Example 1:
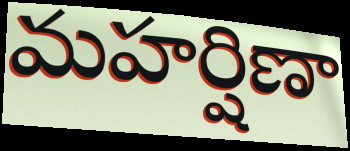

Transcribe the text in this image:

మహర్షిణా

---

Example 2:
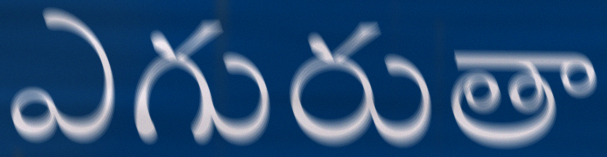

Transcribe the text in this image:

ఎగురుతా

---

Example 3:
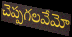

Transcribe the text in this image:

చెప్పగలవేమో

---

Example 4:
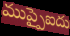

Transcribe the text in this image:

ముప్పైఐదు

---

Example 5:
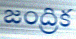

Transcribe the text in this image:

జంద్రిక